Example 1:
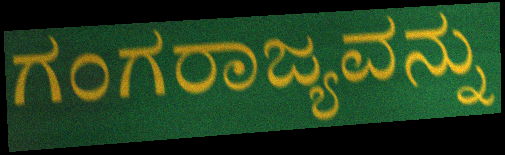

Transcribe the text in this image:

ಗಂಗರಾಜ್ಯವನ್ನು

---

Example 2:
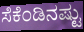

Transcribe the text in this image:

ಸೆಕೆಂಡಿನಷ್ಟು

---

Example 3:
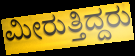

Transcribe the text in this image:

ಮೀರುತ್ತಿದ್ದರು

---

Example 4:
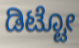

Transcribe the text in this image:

ಡಿಟ್ಟೋ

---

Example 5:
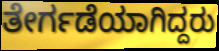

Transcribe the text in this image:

ತೇರ್ಗಡೆಯಾಗಿದ್ದರು